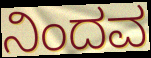
ನಿಂದವ